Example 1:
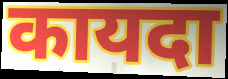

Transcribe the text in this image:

कायदा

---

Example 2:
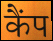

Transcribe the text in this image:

कैंप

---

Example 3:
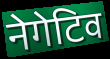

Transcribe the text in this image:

नेगेटिव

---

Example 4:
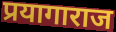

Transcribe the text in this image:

प्रयागाराज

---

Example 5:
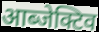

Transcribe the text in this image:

आब्जेक्टिव